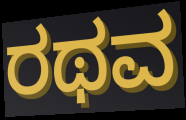
ರಥವ